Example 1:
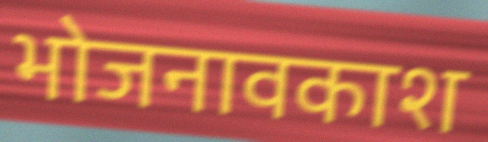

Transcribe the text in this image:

भोजनावकाश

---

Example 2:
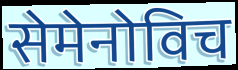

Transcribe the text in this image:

सेमेनोविच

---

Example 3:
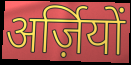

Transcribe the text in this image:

अर्ज़ियों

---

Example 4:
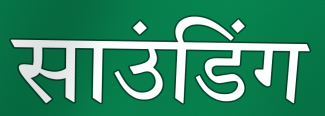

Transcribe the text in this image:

साउंडिंग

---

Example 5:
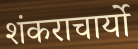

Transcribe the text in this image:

शंकराचार्यो